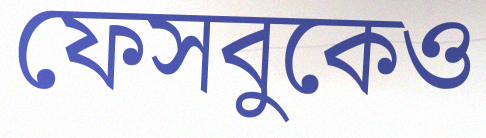
ফেসবুকেও